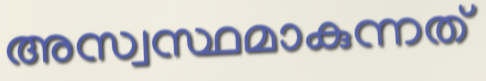
അസ്വസ്ഥമാകുന്നത്